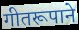
गीतरूपाने